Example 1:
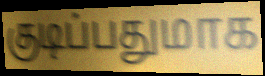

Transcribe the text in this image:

குடிப்பதுமாக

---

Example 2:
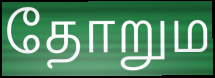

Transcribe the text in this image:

தோறும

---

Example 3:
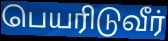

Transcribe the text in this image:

பெயரிடுவீர்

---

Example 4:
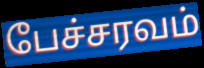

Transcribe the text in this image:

பேச்சரவம்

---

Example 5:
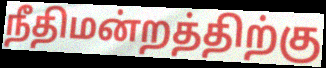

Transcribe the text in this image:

நீதிமன்றத்திற்கு